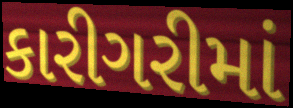
કારીગરીમાં